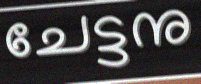
ചേട്ടനു